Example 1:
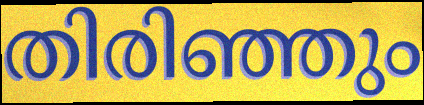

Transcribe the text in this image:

തിരിഞ്ഞും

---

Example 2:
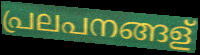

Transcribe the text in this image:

പ്രലപനങ്ങള്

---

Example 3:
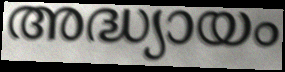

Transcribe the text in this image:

അദ്ധ്യായം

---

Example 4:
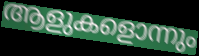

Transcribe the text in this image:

ആളുകളൊന്നും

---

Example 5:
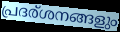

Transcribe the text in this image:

പ്രദര്ശനങ്ങളും